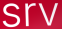
srv